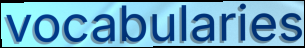
vocabularies